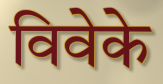
विवेके